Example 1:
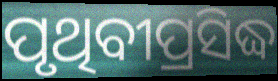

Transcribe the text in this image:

ପୃଥିବୀପ୍ରସିଦ୍ଧ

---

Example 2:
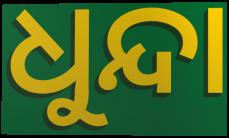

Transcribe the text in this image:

ଧୁନ୍ଦା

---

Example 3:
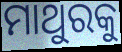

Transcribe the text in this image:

ମାଥୁରକୁ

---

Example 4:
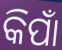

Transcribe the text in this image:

କିପାଁ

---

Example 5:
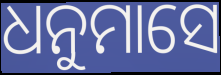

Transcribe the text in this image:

ଧନୁମାସେ